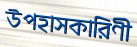
উপহাসকারিণী